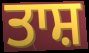
ਤਾਸ਼